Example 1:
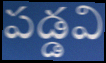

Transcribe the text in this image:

పడ్డవి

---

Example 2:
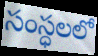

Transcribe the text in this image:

సంస్ధలలో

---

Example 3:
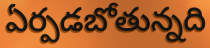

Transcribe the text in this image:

ఏర్పడబోతున్నది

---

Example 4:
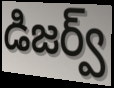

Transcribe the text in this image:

డిజర్వ్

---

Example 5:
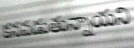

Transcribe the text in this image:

కనపడుతున్నాయని